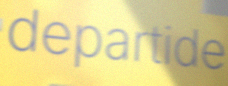
departide